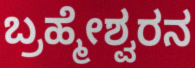
ಬ್ರಹ್ಮೇಶ್ವರನ